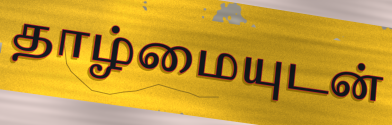
தாழ்மையுடன்